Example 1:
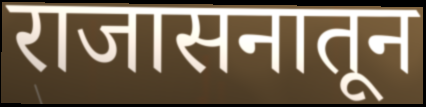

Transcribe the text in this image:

राजासनातून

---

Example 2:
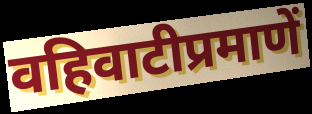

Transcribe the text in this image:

वहिवाटीप्रमाणें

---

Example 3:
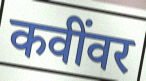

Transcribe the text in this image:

कवींवर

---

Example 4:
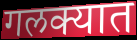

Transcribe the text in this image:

गलक्यात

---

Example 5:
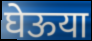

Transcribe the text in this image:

घेऊया